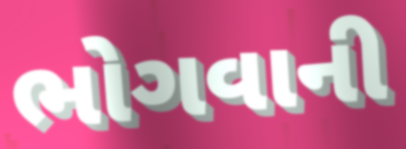
ભોગવાની